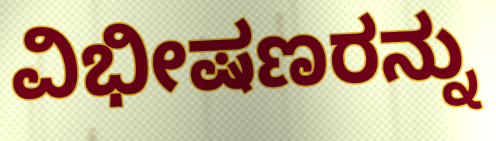
ವಿಭೀಷಣರನ್ನು